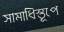
সামাধিস্তূপে